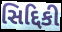
સિદ્દિકી